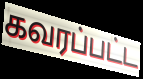
கவரப்பட்ட